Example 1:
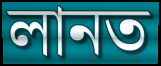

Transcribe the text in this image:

লানত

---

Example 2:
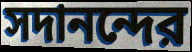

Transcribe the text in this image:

সদানন্দের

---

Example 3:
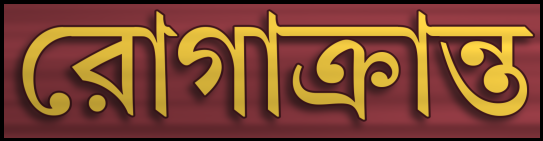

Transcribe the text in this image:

রোগাক্রান্ত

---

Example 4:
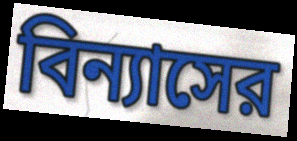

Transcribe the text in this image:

বিন্যাসের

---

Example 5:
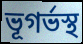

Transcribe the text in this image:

ভূগর্ভস্থ